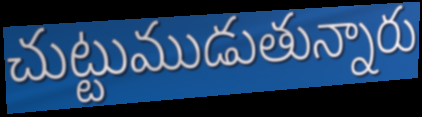
చుట్టుముడుతున్నారు